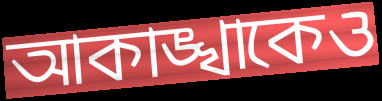
আকাঙ্খাকেও